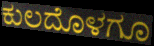
ಕುಲದೊಳಗೂ